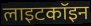
लाइटकॉइन